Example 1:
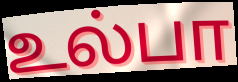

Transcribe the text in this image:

உல்பா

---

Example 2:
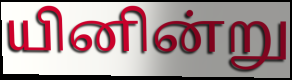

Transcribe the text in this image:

யினின்று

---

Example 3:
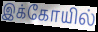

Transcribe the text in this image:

இக்கோயில்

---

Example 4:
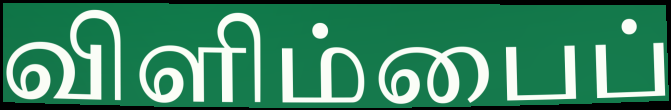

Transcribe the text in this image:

விளிம்பைப்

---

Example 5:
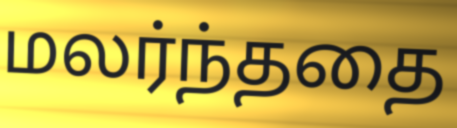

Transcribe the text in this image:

மலர்ந்ததை